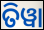
ତିୱା